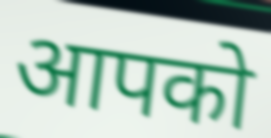
आपको